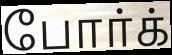
போர்க்